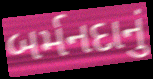
બર્મનદાનું